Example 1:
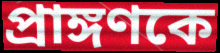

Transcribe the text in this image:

প্রাঙ্গণকে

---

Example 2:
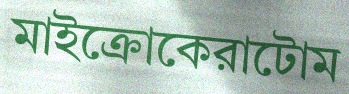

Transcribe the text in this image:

মাইক্রোকেরাটোম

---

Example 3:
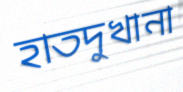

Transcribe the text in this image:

হাতদুখানা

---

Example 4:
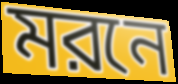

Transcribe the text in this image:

মরনে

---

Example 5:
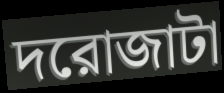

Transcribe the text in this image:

দরোজাটা